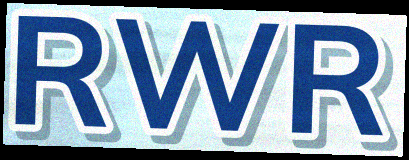
RWR